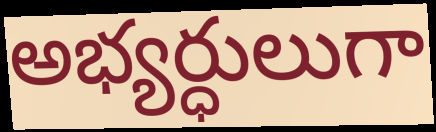
అభ్యర్ధులుగా